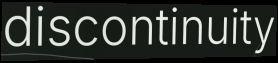
discontinuity